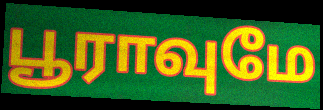
பூராவுமே